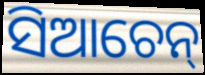
ସିଆଚେନ୍